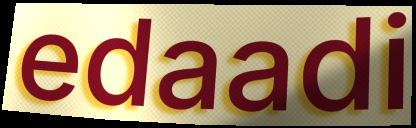
edaadi